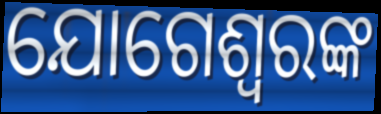
ଯୋଗେଶ୍ୱରଙ୍କ